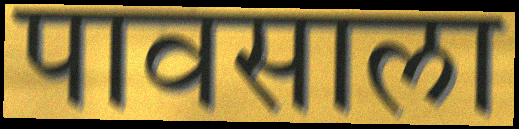
पावसाला